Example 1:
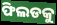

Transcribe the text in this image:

ଫିଲଡକୁ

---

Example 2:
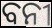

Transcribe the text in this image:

ବନୀ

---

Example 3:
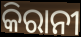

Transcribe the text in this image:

କିରାନୀ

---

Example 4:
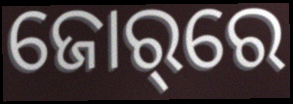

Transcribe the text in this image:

ଜୋର୍‌ରେ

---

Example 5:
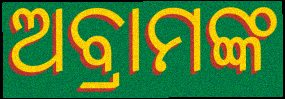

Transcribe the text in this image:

ଅବ୍ରାମଙ୍କ